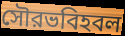
সৌরভবিহবল